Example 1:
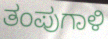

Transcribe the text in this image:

ತಂಪುಗಾಳಿ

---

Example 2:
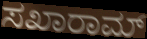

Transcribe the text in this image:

ಸಖಾರಾಮ್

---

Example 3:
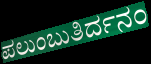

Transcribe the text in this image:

ಪಲುಂಬುತಿರ್ದನಂ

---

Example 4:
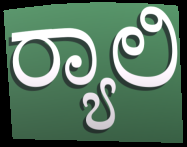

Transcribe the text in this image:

ರ‍್ಯಾಲಿ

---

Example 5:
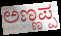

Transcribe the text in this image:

ಅಣ್ಣಪ್ಪ